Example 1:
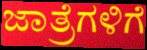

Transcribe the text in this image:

ಜಾತ್ರೆಗಳಿಗೆ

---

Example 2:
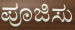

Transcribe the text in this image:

ಪೂಜಿಸು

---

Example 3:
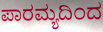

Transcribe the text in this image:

ಪಾರಮ್ಯದಿಂದ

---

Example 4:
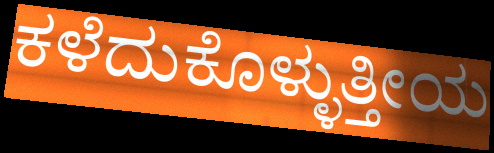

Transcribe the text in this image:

ಕಳೆದುಕೊಳ್ಳುತ್ತೀಯ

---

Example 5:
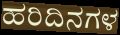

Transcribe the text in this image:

ಹರಿದಿನಗಳ